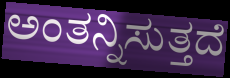
ಅಂತನ್ನಿಸುತ್ತದೆ